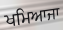
ਖਮਿਆਜਾ